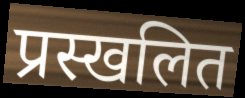
प्रस्खलित